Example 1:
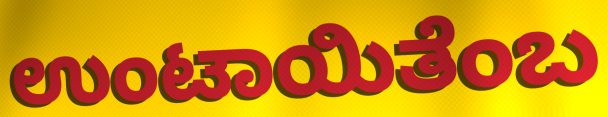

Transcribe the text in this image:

ಉಂಟಾಯಿತೆಂಬ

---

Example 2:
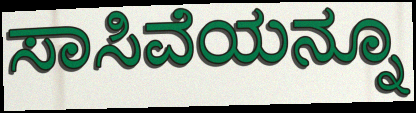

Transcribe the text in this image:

ಸಾಸಿವೆಯನ್ನೂ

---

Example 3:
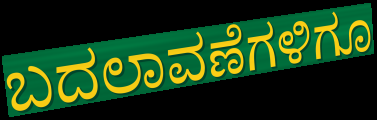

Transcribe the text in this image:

ಬದಲಾವಣೆಗಳಿಗೂ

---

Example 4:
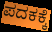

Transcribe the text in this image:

ಪದಕಕ್ಕೆ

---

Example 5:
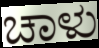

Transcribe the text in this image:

ಚಾಳು